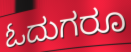
ಓದುಗರೂ